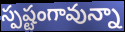
స్పష్టంగావున్నా